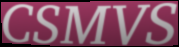
CSMVS